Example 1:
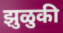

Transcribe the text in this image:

झुळुकी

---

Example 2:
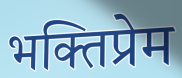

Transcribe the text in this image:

भक्तिप्रेम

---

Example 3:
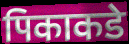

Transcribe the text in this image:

पिकाकडे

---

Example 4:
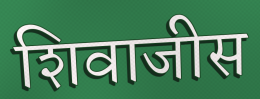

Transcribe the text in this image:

शिवाजीस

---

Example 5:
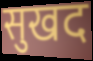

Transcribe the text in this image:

सुखद